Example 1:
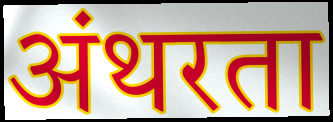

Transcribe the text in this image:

अंथरता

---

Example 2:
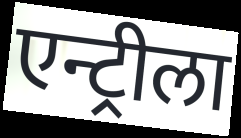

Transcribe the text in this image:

एन्ट्रीला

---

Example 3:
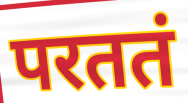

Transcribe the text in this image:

परततं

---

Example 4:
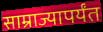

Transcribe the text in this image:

साम्राज्यापर्यंत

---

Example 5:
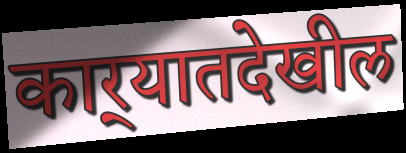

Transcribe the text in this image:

कार्यातदेखील